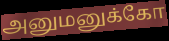
அனுமனுக்கோ